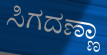
ಸಿಗದಣ್ಣಾ